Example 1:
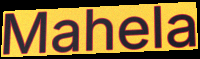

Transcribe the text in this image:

Mahela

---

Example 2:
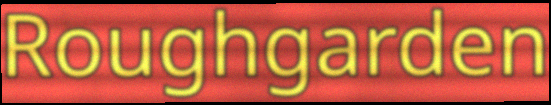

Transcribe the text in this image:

Roughgarden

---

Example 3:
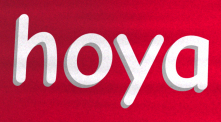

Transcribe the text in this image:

hoya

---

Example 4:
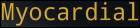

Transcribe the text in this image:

Myocardial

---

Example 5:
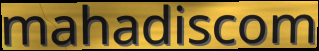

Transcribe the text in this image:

mahadiscom